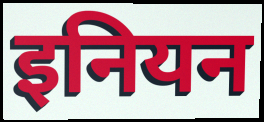
इनियन